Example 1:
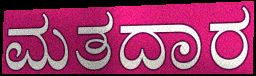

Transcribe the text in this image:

ಮತದಾರ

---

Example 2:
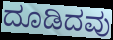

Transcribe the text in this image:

ದೂಡಿದವು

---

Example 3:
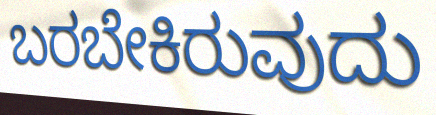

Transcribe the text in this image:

ಬರಬೇಕಿರುವುದು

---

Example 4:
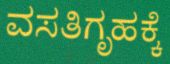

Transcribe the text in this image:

ವಸತಿಗೃಹಕ್ಕೆ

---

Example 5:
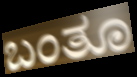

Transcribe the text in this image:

ಬಂತೂ